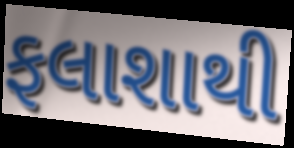
ફલાશાથી